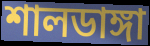
শালডাঙ্গা